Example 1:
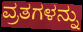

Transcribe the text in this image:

ವ್ರತಗಳನ್ನು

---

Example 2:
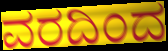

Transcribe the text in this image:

ವರದಿಂದ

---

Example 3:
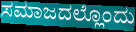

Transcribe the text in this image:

ಸಮಾಜದಲ್ಲೊಂದು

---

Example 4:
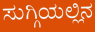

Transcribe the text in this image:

ಸುಗ್ಗಿಯಲ್ಲಿನ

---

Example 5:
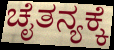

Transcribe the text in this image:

ಚೈತನ್ಯಕ್ಕೆ